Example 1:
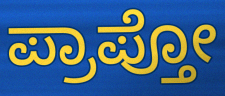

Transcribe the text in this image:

ಪ್ರಾಪ್ತೋ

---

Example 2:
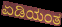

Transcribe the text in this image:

ಏಡಿಯಂತ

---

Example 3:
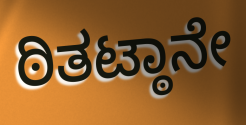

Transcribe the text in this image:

ಠಿತಟ್ಠಾನೇ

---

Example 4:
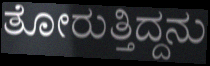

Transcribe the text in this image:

ತೋರುತ್ತಿದ್ದನು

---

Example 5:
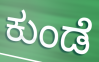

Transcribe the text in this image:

ಕುಂಡೆ